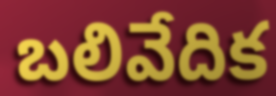
బలివేదిక